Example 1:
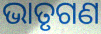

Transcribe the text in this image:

ଭାତୃଗଣ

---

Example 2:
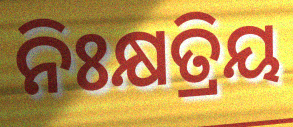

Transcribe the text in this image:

ନିଃକ୍ଷତ୍ରିୟ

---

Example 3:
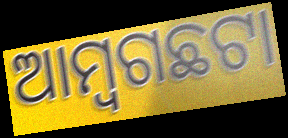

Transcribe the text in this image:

ଆମ୍ବଗଛଟା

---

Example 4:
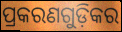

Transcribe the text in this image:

ପ୍ରକରଣଗୁଡ଼ିକର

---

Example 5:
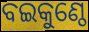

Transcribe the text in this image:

ବଇକୁଣ୍ଠେ